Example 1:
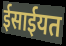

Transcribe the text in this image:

ईसाईयत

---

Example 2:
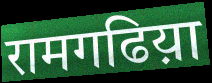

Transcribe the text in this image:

रामगढिय़ा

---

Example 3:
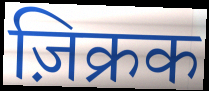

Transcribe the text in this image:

ज़िक्रक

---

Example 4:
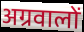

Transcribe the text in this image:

अग्रवालों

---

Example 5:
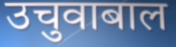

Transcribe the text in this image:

उचुवाबाल